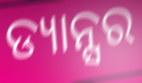
ଡ୍ୟାନ୍ସର